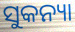
ସୁକନ୍ୟା